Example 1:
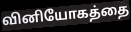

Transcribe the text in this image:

வினியோகத்தை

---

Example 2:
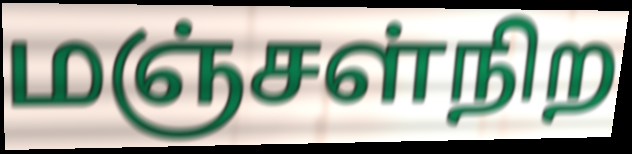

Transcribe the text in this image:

மஞ்சள்நிற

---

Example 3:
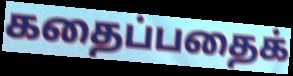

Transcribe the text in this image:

கதைப்பதைக்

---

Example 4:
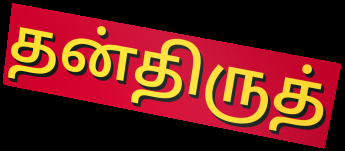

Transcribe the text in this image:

தன்திருத்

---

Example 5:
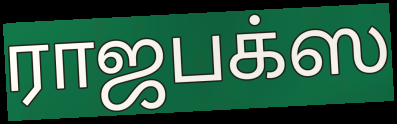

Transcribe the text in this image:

ராஜபக்ஸ